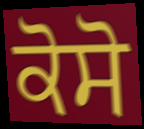
ਕੋਸੋ